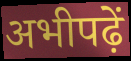
अभीपढ़ें